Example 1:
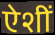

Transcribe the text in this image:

ऐशीं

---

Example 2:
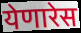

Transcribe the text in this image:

येणारेस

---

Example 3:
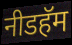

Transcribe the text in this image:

नीडहॅम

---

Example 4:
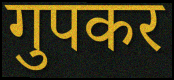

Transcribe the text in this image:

गुपकर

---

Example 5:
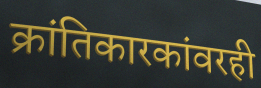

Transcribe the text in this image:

क्रांतिकारकांवरही